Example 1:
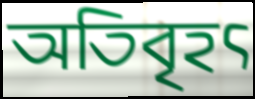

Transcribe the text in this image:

অতিবৃহৎ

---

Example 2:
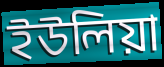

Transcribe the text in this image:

ইউলিয়া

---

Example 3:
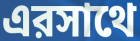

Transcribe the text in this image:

এরসাথে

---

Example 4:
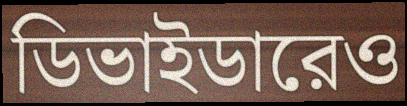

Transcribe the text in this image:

ডিভাইডারেও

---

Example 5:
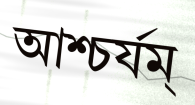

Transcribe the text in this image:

আশ্চর্যম্